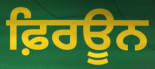
ਫ਼ਿਰਊਨ